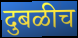
दुबळीच